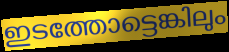
ഇടത്തോട്ടെങ്കിലും